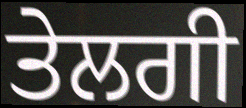
ਤੇਲਗੀ